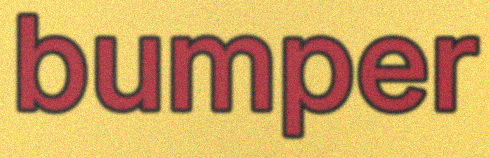
bumper